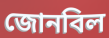
জোনবিল